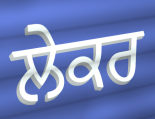
ਲੇਕਰ